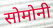
सोमोनी